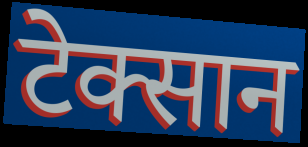
टेक्सान